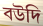
বউদি